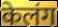
केलंग